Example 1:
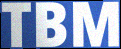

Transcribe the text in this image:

TBM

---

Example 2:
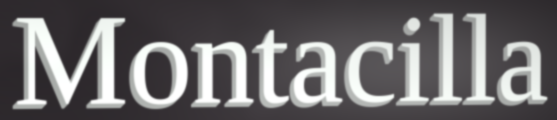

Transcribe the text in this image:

Montacilla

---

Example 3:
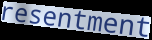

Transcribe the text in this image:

resentment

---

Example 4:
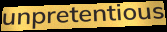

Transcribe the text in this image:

unpretentious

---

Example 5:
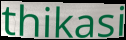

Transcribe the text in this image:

thikasi